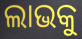
ଲାଭକୁ